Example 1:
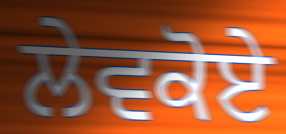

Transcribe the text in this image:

ਲੇਵਕੋਏ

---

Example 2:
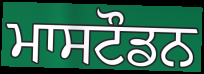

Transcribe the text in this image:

ਮਾਸਟੌਡਨ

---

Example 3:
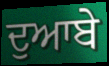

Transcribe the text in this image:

ਦੁਆਬੇ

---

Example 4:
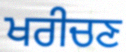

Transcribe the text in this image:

ਖਰੀਚਣ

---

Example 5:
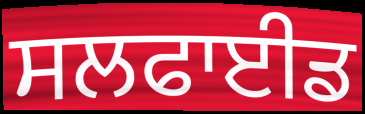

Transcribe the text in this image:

ਸਲਫਾਈਡ